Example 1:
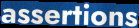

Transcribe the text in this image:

assertions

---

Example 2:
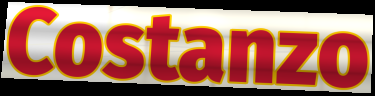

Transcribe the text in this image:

Costanzo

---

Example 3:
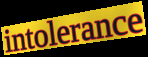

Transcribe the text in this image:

intolerance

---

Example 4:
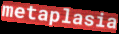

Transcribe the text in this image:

metaplasia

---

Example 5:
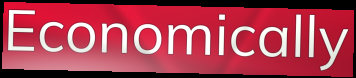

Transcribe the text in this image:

Economically